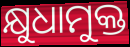
କ୍ଷୁଧାମୁକ୍ତ